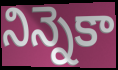
నిన్నెకా